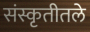
संस्कृतीतले